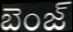
బెంజ్